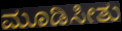
ಮೂಡಿಸೀತು